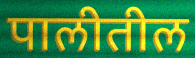
पालीतील